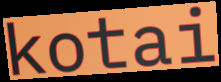
kotai